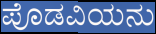
ಪೊಡವಿಯನು